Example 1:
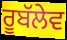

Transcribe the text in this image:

ਰੂਬੱਲੇਵ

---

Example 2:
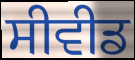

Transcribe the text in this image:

ਸੀਵੀਡ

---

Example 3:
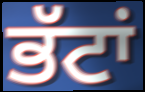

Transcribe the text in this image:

ਭੱਟਾਂ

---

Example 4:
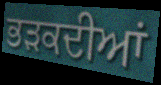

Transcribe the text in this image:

ਭੜਕਦੀਆਂ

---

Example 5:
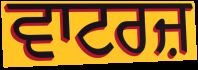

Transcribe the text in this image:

ਵਾਟਰਜ਼